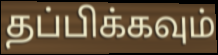
தப்பிக்கவும்